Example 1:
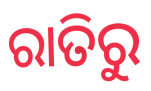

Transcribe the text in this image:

ରାତିରୁ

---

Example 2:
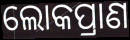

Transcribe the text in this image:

ଲୋକପ୍ରାଣ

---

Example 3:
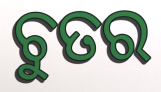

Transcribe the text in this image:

ଚୁତର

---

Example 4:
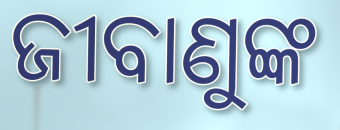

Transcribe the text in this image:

ଜୀବାଣୁଙ୍କ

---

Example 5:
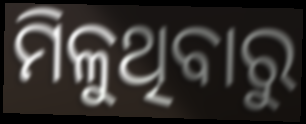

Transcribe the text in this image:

ମିଳୁଥିବାରୁ